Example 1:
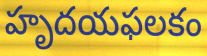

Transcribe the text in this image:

హృదయఫలకం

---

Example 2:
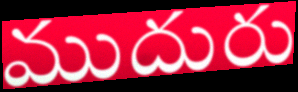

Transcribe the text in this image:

ముదురు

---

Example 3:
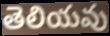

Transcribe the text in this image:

తెలియవు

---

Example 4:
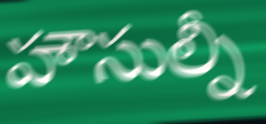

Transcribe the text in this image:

హౌసుల్నీ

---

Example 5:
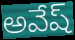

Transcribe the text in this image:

అవేష్